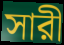
সারী